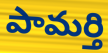
పామర్తి